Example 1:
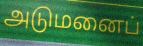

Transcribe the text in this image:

அடுமனைப்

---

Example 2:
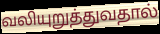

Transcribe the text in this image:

வலியுறுத்துவதால்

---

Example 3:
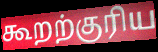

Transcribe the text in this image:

கூறற்குரிய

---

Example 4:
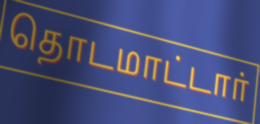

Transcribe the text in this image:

தொடமாட்டார்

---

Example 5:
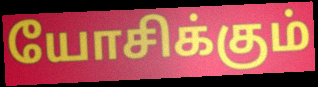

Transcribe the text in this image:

யோசிக்கும்